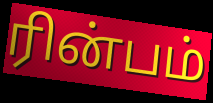
ரின்பம்